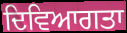
ਦਿਵਿਆਗਤਾ